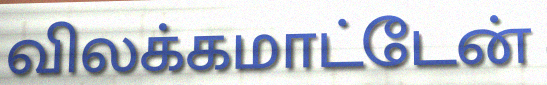
விலக்கமாட்டேன்